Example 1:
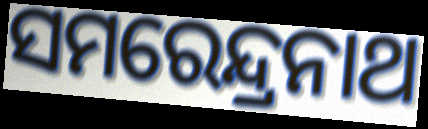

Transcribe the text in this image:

ସମରେନ୍ଦ୍ରନାଥ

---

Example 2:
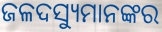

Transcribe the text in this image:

ଜଳଦସ୍ୟୁମାନଙ୍କର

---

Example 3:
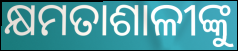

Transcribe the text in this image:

କ୍ଷମତାଶାଳୀଙ୍କୁ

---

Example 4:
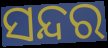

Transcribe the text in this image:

ସନ୍ଦର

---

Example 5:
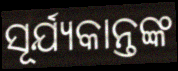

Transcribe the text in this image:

ସୂର୍ଯ୍ୟକାନ୍ତଙ୍କ